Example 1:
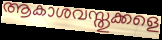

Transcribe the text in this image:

ആകാശവസ്തുക്കളെ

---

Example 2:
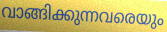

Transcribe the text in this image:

വാങ്ങിക്കുന്നവരെയും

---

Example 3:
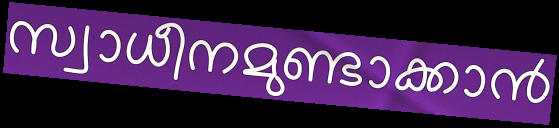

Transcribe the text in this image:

സ്വാധീനമുണ്ടാക്കാൻ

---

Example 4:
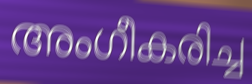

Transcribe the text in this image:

അംഗീകരിച്ച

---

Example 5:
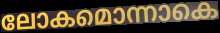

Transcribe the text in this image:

ലോകമൊന്നാകെ